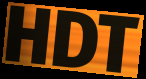
HDT